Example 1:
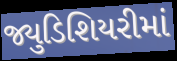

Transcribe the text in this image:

જ્યુડિશિયરીમાં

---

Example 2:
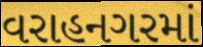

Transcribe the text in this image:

વરાહનગરમાં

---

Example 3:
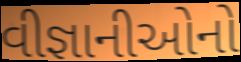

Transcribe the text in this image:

વીજ્ઞાનીઓનો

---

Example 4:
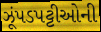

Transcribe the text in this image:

ઝૂંપડપટ્ટીઓની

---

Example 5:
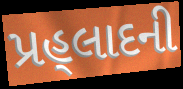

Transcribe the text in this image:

પ્રહ્‌લાદની